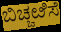
ಬಿಚ್ಚೞಿಸೆ